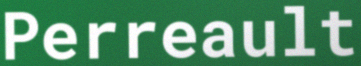
Perreault